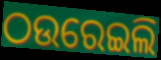
ଠଉରେଇଲି